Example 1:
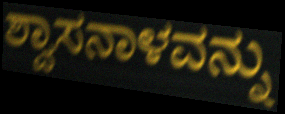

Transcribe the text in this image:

ಶ್ವಾಸನಾಳವನ್ನು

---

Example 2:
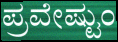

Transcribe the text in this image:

ಪ್ರವೇಷ್ಟುಂ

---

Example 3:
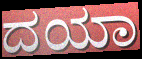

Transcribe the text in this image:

ದಯಾ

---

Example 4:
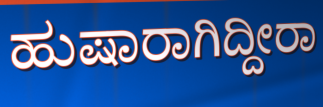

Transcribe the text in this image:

ಹುಷಾರಾಗಿದ್ದೀರಾ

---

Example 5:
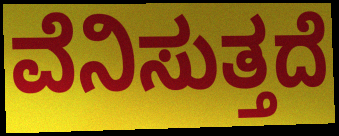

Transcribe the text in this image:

ವೆನಿಸುತ್ತದೆ